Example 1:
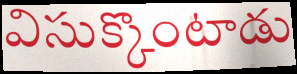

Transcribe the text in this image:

విసుక్కొంటాడు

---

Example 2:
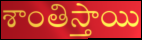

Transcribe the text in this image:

శాంతిస్తాయి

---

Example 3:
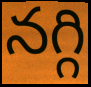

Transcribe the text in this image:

నగ్గి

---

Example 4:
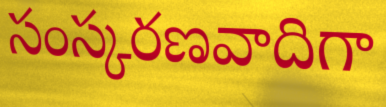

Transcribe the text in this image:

సంస్కరణవాదిగా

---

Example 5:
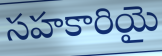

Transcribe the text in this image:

సహకారియై